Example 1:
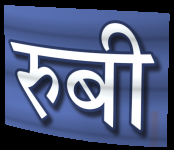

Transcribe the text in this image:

रुबी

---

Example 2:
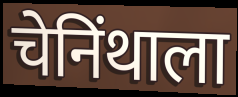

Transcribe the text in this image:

चेनिंथाला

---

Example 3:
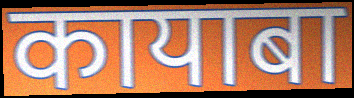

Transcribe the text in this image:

कायाबा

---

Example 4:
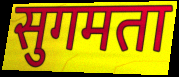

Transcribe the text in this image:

सुगमता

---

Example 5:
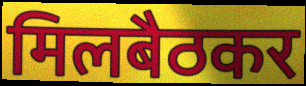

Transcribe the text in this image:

मिलबैठकर